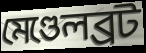
মেণ্ডেলব্ৰট